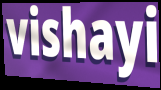
vishayi